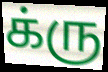
க்ரு